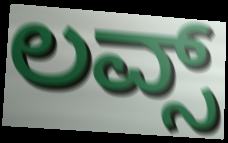
ಲವ್ಸ್